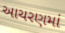
આચરણમાં